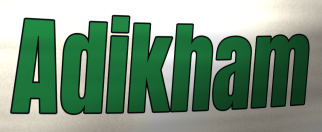
Adikham